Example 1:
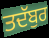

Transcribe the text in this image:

ਤਦੱਬੁਰ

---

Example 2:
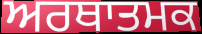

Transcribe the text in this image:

ਅਰਥਾਤਮਕ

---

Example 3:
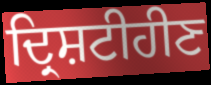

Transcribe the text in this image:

ਦ੍ਰਿਸ਼ਟੀਹੀਣ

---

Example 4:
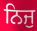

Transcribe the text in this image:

ਨਿਜੁ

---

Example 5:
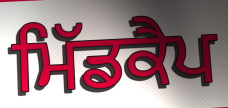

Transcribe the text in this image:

ਮਿੱਡਕੈਪ